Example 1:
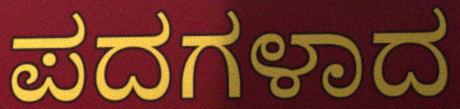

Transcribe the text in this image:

ಪದಗಳಾದ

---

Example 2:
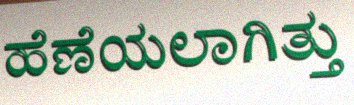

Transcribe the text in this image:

ಹೆಣೆಯಲಾಗಿತ್ತು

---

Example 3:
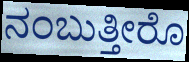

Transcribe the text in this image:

ನಂಬುತ್ತೀರೊ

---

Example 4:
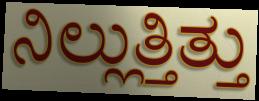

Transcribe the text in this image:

ನಿಲ್ಲುತ್ತಿತ್ತು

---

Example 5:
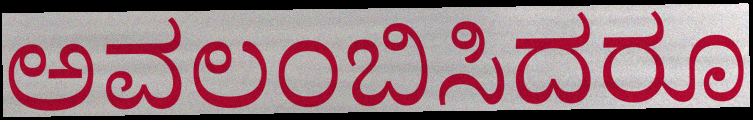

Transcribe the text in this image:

ಅವಲಂಬಿಸಿದರೂ